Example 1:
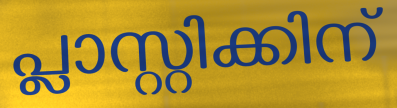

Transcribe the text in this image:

പ്ലാസ്റ്റിക്കിന്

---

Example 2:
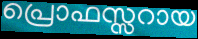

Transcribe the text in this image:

പ്രൊഫസ്സറായ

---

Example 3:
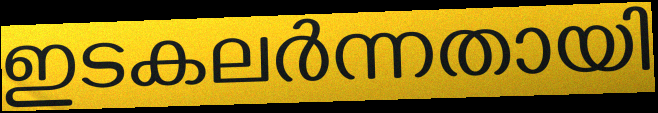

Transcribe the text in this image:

ഇടകലർന്നതായി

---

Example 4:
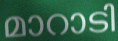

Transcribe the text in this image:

മാറാടി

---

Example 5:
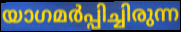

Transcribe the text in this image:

യാഗമർപ്പിച്ചിരുന്ന